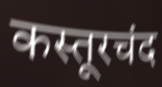
कस्तूरचंद